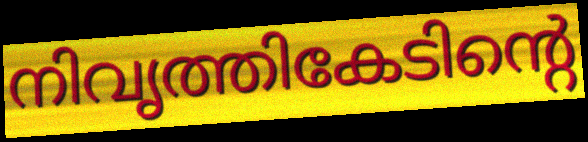
നിവൃത്തികേടിന്റെ